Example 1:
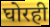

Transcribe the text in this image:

घोरही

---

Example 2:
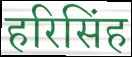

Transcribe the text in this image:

हरिसिंह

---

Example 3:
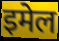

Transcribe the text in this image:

इमेल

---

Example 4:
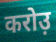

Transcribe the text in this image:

करोउ़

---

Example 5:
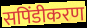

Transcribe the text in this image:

सपिंडीकरण